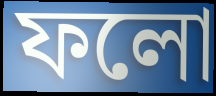
ফলো